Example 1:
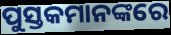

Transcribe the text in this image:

ପୁସ୍ତକମାନଙ୍କରେ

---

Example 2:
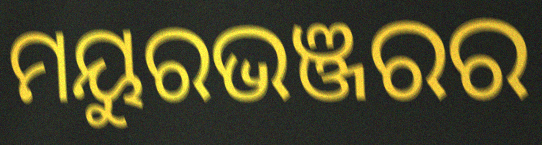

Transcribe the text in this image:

ମୟୁରଭଞ୍ଜରର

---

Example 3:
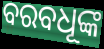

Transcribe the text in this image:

ବରବଧୂଙ୍କ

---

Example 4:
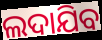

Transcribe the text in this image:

ଲଦାଯିବ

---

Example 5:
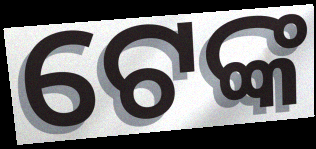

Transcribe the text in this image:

ଟେଙ୍କ